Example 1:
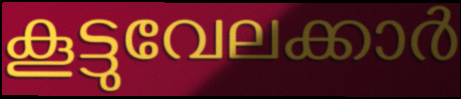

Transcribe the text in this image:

കൂട്ടുവേലക്കാർ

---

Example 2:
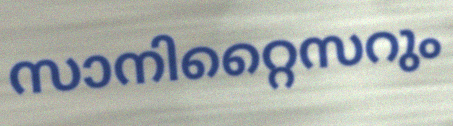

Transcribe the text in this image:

സാനിറ്റൈസറും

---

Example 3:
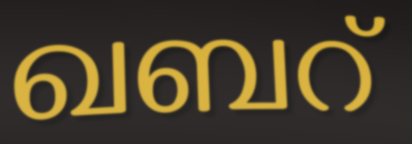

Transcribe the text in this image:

ഖബറ്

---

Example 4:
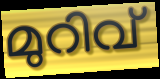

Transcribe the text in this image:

മുറിവ്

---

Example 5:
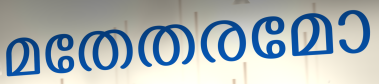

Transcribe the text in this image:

മതേതരമോ